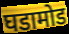
घडामोड